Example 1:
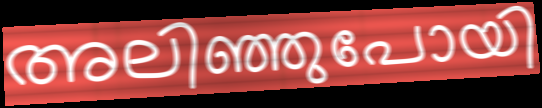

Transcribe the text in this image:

അലിഞ്ഞുപോയി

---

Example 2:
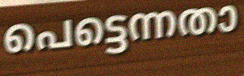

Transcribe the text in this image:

പെട്ടെന്നതാ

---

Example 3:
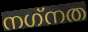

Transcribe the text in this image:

നഗ്‌നത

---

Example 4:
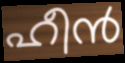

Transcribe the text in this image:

ഹീൻ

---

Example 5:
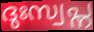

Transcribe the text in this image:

ദുഃസ്വപ്ന